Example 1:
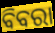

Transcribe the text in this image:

ବିବରା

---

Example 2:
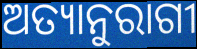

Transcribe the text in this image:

ଅତ୍ୟାନୁରାଗୀ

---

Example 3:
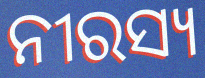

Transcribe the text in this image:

ନୀରସ୍ୟ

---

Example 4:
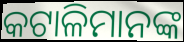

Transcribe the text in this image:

କଟାଳିମାନଙ୍କ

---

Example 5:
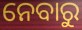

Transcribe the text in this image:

ନେବାରୁ